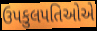
ઉપકુલપતિઓએ